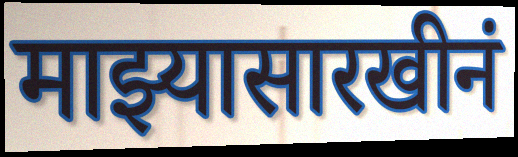
माझ्यासारखीनं